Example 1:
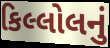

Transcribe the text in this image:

કિલ્લોલનું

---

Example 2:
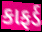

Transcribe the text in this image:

કાફર્ડ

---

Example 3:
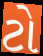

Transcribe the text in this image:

ટો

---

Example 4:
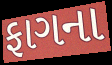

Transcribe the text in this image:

ફાગના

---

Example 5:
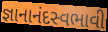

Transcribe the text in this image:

જ્ઞાનાનંદસ્વભાવી